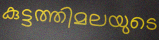
കുട്ടത്തിമലയുടെ